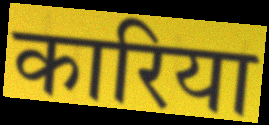
कारिया